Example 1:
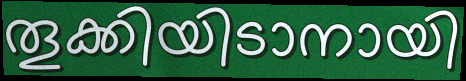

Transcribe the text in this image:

തൂക്കിയിടാനായി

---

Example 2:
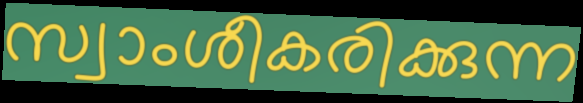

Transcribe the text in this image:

സ്വാംശീകരിക്കുന്ന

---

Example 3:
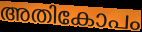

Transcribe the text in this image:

അതികോപം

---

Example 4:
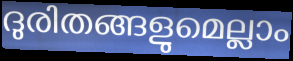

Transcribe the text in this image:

ദുരിതങ്ങളുമെല്ലാം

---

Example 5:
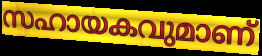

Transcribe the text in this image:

സഹായകവുമാണ്